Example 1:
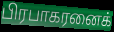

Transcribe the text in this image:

பிரபாகரனைக்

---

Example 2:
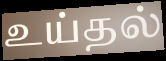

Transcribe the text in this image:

உய்தல்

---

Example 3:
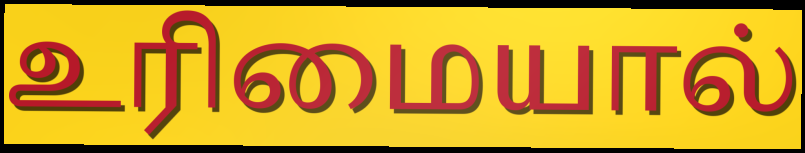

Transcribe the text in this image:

உரிமையால்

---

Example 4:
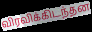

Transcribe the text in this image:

விரவிக்கிடந்தன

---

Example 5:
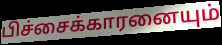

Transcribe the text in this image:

பிச்சைக்காரனையும்